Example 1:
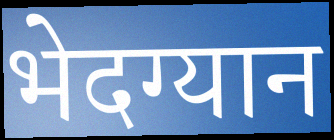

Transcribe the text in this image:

भेदग्यान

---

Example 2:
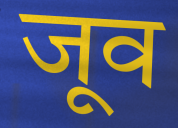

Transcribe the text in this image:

जूव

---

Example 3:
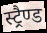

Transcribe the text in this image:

स्ट्रैण्ड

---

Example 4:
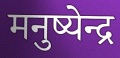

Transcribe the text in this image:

मनुष्येन्द्र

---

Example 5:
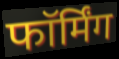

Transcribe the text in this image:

फॉर्मिंग